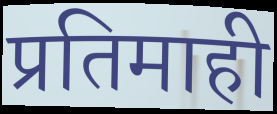
प्रतिमाही